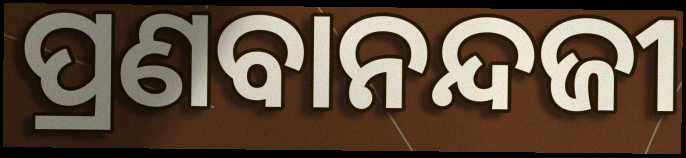
ପ୍ରଣବାନନ୍ଦଜୀ